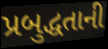
પ્રબુદ્ધતાની